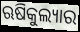
ଋଷିକୁଲ୍ୟାର